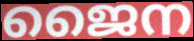
ജൈന